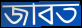
জাবত